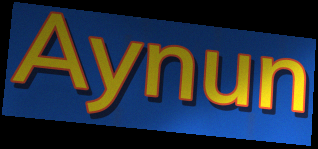
Aynun